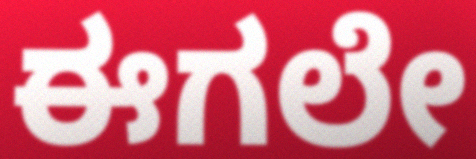
ಈಗಲೇ